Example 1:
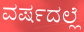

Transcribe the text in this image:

ವರ್ಷದಲ್ಲೆ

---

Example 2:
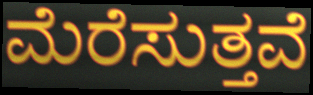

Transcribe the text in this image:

ಮೆರೆಸುತ್ತವೆ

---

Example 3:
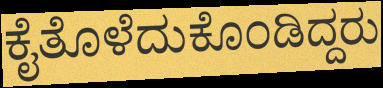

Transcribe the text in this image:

ಕೈತೊಳೆದುಕೊಂಡಿದ್ದರು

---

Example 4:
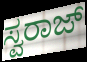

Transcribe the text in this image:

ಸ್ವರಾಜ್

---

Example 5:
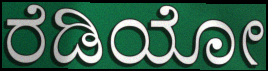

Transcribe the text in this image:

ರೆಡಿಯೋ